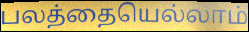
பலத்தையெல்லாம்